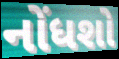
નોંધશો